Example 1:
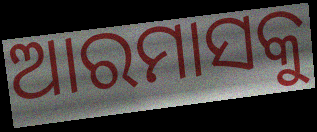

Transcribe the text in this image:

ଆରମାସକୁ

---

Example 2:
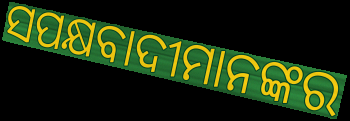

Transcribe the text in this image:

ସପକ୍ଷବାଦୀମାନଙ୍କର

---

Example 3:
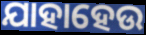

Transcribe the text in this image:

ଯାହାହେଉ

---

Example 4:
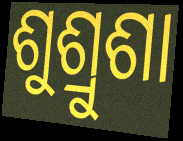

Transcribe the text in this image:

ଶୁଶ୍ରୁଶା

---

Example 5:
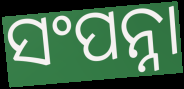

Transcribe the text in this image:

ସଂପନ୍ନା